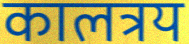
कालत्रय